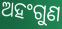
ଅହଂଗୁଣ